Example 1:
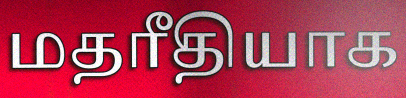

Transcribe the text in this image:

மதரீதியாக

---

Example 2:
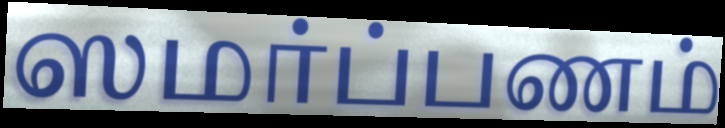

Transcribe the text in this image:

ஸமர்ப்பணம்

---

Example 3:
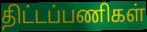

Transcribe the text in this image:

திட்டப்பணிகள்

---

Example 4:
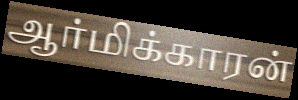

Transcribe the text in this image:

ஆர்மிக்காரன்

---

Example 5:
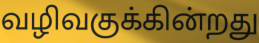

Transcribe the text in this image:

வழிவகுக்கின்றது